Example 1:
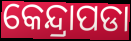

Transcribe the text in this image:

କେନ୍ଦ୍ରାପଡା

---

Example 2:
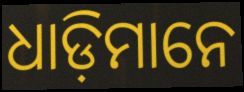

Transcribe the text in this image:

ଧାଡ଼ିମାନେ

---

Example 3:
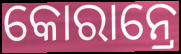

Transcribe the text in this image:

କୋରାନ୍ରେ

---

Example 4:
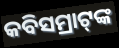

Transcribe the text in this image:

କବିସମ୍ରାଟ୍‌ଙ୍କ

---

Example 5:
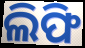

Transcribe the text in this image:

ଲିଫି